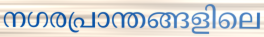
നഗരപ്രാന്തങ്ങളിലെ